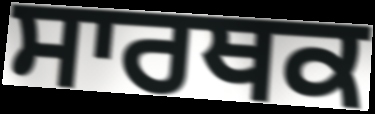
ਸਾਰਥਕ